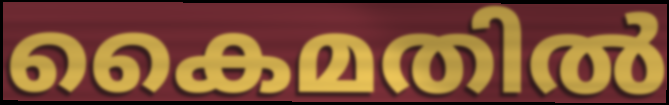
കൈമതിൽ